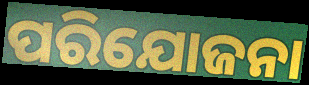
ପରିଯୋଜନା